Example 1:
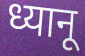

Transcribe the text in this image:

ध्यानू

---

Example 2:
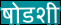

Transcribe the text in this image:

षोडशी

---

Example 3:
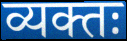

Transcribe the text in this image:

व्यक्तः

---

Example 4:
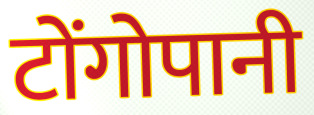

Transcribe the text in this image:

टोंगोपानी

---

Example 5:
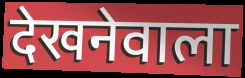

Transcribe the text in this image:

देखनेवाला